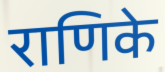
राणिके